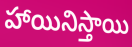
హాయినిస్తాయి